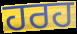
ਹਰਹ